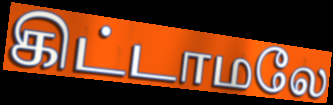
கிட்டாமலே